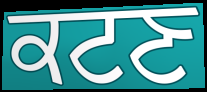
ਕਟਣ